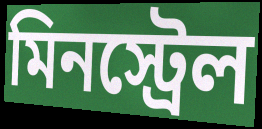
মিনস্ট্রেল